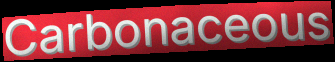
Carbonaceous